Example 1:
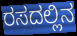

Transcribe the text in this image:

ರಸದಲ್ಲಿನ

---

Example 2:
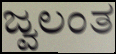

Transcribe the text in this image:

ಜ್ವಲಂತ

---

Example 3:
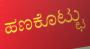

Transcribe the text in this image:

ಹಣಕೊಟ್ಟು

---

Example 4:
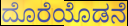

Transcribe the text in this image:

ದೊರೆಯೊಡನೆ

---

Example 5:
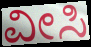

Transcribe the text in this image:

ವೀಸಿ